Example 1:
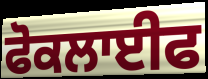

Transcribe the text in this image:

ਫੋਕਲਾਈਫ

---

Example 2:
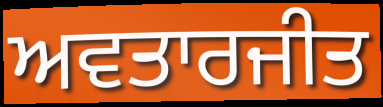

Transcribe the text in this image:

ਅਵਤਾਰਜੀਤ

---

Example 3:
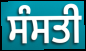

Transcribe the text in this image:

ਸੰਸਤੀ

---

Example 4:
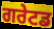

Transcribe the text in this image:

ਗਰੇਟਡ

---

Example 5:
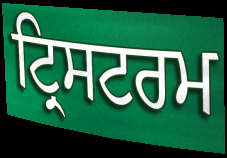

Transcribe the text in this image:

ਟ੍ਰਿਸਟਰਮ